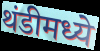
थंडीमध्ये